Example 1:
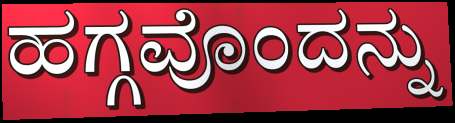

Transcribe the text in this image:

ಹಗ್ಗವೊಂದನ್ನು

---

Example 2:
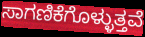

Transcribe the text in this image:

ಸಾಗಣಿಕೆಗೊಳ್ಳುತ್ತವೆ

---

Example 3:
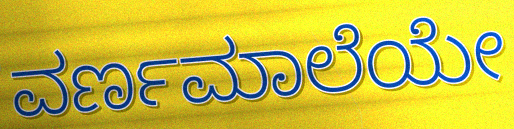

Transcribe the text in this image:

ವರ್ಣಮಾಲೆಯೇ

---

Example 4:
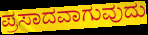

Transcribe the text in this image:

ಪ್ರಸಾದವಾಗುವುದು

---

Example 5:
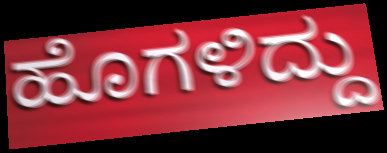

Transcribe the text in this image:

ಹೊಗಳಿದ್ದು